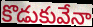
కొడుకువేనా